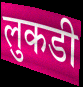
लुकडी